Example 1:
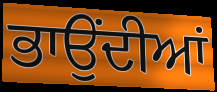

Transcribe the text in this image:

ਭਾਉਂਦੀਆਂ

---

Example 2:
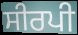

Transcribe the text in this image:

ਸੀਰਪੀ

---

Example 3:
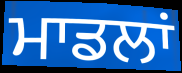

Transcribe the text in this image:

ਮਾਡਲਾਂ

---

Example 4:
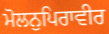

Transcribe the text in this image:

ਮੋਲਨੁਪਿਰਾਵੀਰ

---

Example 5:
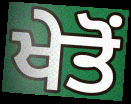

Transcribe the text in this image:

ਖੇਤੋਂ